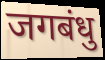
जगबंधु